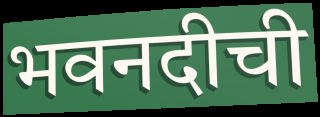
भवनदीची